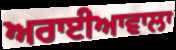
ਅਰਾਈਆਵਾਲਾ